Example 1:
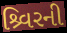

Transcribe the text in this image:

શ્ર્વિરની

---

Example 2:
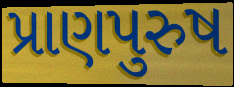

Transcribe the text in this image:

પ્રાણપુરુષ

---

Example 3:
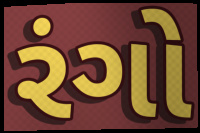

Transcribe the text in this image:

રંગો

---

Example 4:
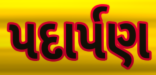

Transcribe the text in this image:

પદાર્પણ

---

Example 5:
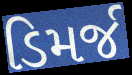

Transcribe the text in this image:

ડિમર્જ